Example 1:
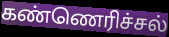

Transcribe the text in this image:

கண்ணெரிச்சல்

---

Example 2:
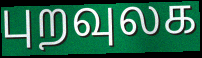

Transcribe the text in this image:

புறவுலக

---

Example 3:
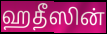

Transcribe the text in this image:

ஹதீஸின்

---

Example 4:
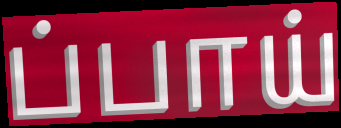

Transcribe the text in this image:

ப்பாய்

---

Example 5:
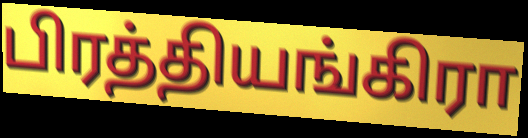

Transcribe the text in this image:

பிரத்தியங்கிரா